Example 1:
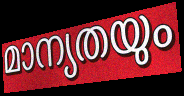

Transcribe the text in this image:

മാന്യതയും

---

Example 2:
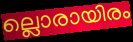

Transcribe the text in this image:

ല്ലൊരായിരം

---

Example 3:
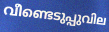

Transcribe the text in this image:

വീണ്ടെടുപ്പുവില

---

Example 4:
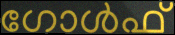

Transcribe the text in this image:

ഗോൾഫ്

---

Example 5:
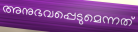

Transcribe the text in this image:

അനുഭവപ്പെടുമെന്നത്